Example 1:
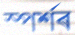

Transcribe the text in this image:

স্পৰ্শৰ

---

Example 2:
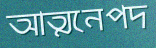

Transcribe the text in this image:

আত্মনেপদ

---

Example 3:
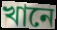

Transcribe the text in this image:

খানে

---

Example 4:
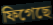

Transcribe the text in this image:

ফিগেছে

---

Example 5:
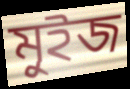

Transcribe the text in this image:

মুইজ